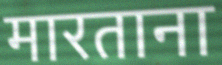
मारताना